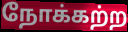
நோக்கற்ற